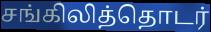
சங்கிலித்தொடர்